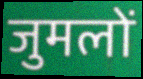
जुमलों